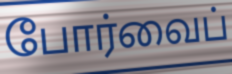
போர்வைப்